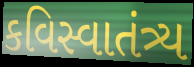
કવિસ્વાતંત્ર્ય